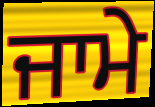
ਜਾਮੇ